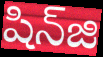
షిన్‌జి